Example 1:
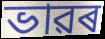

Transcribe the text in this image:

ভাৱৰ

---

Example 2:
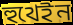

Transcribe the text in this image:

হুথেইন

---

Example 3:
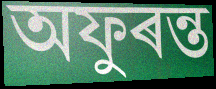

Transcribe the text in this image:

অফুৰন্ত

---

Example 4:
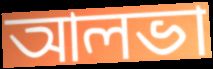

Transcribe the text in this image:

আলভা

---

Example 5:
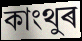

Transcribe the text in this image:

কাংথুৰ